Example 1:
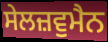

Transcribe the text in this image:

ਸੇਲਜ਼ਵੁਮੈਨ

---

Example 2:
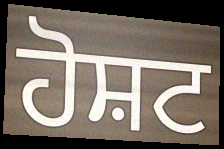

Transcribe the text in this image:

ਹੋਸ਼ਟ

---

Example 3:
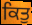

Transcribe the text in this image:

ਕਿਤੁ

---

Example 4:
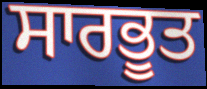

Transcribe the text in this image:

ਸਾਰਭੂਤ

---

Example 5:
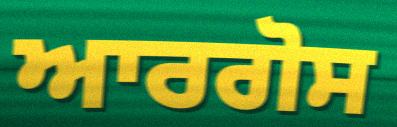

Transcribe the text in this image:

ਆਰਗੋਸ